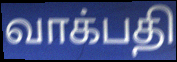
வாக்பதி